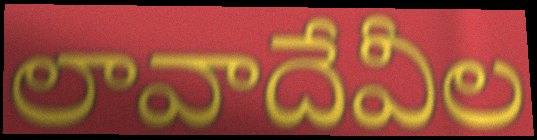
లావాదేవీల